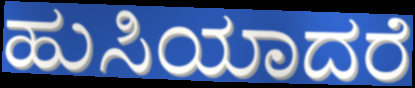
ಹುಸಿಯಾದರೆ